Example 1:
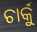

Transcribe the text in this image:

ଚାର୍କୁ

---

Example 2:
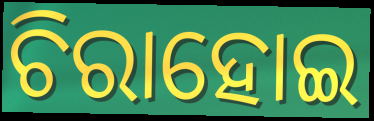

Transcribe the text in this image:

ଚିରାହୋଇ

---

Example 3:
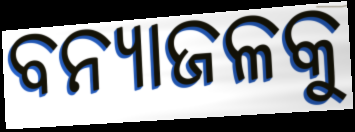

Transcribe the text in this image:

ବନ୍ୟାଜଳକୁ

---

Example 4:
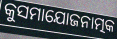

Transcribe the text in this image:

କୁସମାଯୋଜନାତ୍ମକ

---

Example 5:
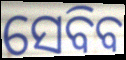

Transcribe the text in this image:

ସେବିବ